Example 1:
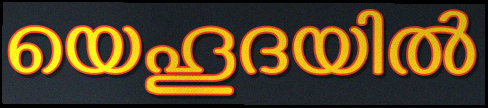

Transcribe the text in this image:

യെഹൂദയിൽ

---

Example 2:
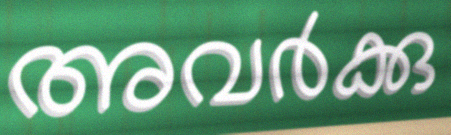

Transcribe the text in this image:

അവർക്കു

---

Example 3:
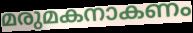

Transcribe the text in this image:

മരുമകനാകണം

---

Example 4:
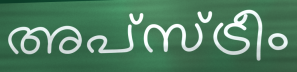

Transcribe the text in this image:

അപ്സ്ട്രീം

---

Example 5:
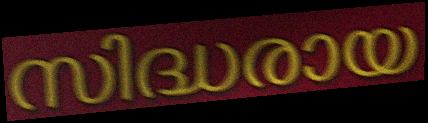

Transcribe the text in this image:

സിദ്ധരായ